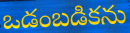
ఒడంబడికను